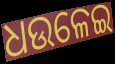
ଧଉଳେଇ